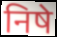
निषे